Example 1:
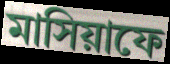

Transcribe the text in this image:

মাসিয়াফে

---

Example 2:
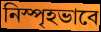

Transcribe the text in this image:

নিস্পৃহভাবে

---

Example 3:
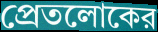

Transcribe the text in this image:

প্রেতলোকের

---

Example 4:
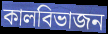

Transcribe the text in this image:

কালবিভাজন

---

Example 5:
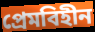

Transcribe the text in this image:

প্রেমবিহীন